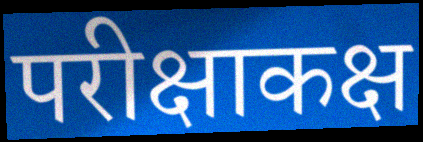
परीक्षाकक्ष